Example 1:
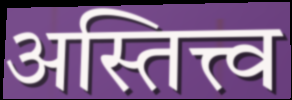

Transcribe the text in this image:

अस्तित्त्व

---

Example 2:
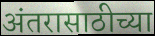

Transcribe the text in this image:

अंतरासाठीच्या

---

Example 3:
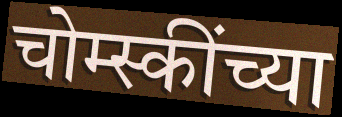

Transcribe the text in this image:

चोम्स्कींच्या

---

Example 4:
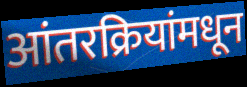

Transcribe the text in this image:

आंतरक्रियांमधून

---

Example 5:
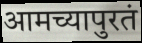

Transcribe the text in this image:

आमच्यापुरतं